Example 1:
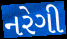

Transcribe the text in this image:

નરેગી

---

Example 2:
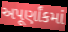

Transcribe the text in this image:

અપૂર્ણાંકમાં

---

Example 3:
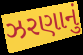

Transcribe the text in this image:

ઝરણાનું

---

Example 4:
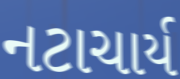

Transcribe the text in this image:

નટાચાર્ય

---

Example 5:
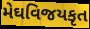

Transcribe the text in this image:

મેઘવિજયકૃત